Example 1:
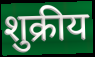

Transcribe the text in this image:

शुक्रीय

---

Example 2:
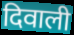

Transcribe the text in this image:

दिवाली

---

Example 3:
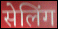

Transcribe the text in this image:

सेलिंग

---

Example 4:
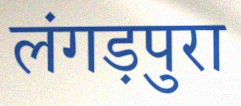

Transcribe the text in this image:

लंगड़पुरा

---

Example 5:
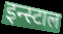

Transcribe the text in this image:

इन्स्टाल